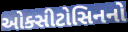
ઓક્સીટોસિનનો